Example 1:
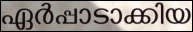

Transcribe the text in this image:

ഏർപ്പാടാക്കിയ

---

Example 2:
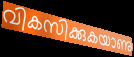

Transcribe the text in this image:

വികസിക്കുകയാണു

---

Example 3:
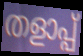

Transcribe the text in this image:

തളാപ്പ്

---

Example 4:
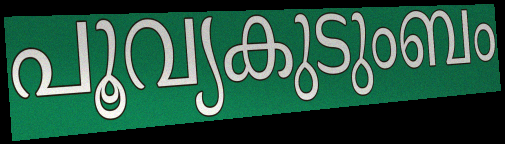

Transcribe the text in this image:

പൂവ്യകുടുംബം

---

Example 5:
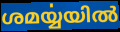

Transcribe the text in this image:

ശമൎയ്യയിൽ